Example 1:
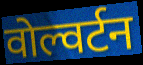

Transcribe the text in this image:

वोल्वर्टन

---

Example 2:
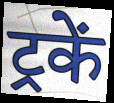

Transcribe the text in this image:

ट्रकें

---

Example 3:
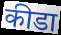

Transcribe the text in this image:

कीडा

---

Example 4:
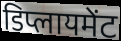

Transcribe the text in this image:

डिप्लायमेंट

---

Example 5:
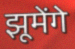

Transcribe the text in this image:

झूमेंगे